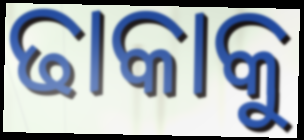
ଢାକାକୁ